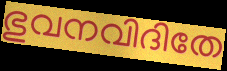
ഭുവനവിദിതേ